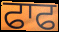
ਫਾਫ